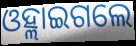
ଓହ୍ଲାଇଗଲେ